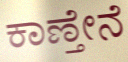
ಕಾಣ್ತೇನೆ